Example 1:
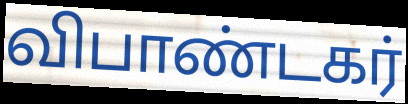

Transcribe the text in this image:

விபாண்டகர்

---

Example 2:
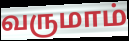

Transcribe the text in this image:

வருமாம்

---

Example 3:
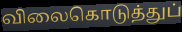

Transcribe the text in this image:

விலைகொடுத்துப்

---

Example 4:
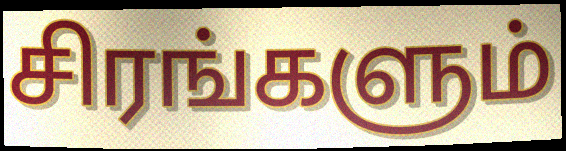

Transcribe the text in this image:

சிரங்களும்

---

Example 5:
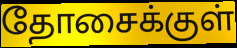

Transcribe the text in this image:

தோசைக்குள்